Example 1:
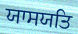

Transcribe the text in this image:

ਯਾਸਯਤਿ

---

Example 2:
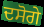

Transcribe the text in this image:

ਦਸੋਗੇ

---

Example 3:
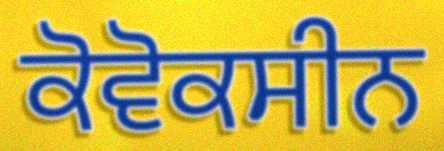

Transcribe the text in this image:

ਕੋਵੋਕਸੀਨ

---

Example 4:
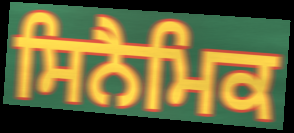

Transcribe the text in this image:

ਸਿਨੈਮਿਕ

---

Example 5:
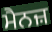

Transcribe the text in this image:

ਮੈਨਜ਼